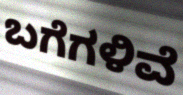
ಬಗೆಗಳಿವೆ